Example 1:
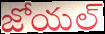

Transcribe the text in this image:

జోయల్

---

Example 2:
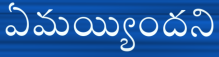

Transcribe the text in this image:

ఏమయ్యిందని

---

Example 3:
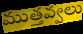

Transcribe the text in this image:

ముత్తవ్వలు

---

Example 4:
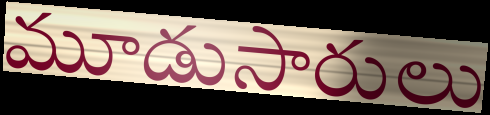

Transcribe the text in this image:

మూడుసారులు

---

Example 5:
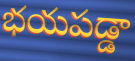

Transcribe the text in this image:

భయపడ్డా